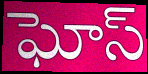
ఘోస్